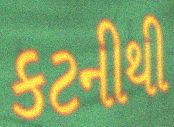
કટનીથી